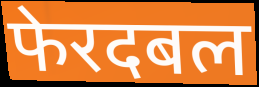
फेरदबल